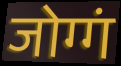
जोग्गं